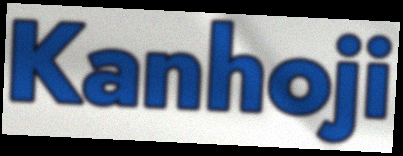
Kanhoji